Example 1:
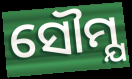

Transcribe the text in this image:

ସୌମ୍ଯ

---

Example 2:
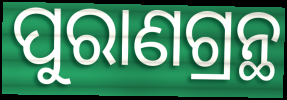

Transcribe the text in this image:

ପୁରାଣଗ୍ରନ୍ଥ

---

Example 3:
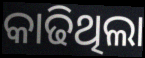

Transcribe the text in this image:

କାଢିଥିଲା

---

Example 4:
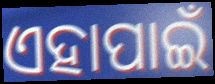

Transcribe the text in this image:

ଏହାପାଇଁ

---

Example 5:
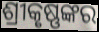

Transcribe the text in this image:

ଶ୍ରୀକୃଷ୍ଣଙ୍କର